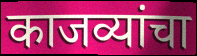
काजव्यांचा